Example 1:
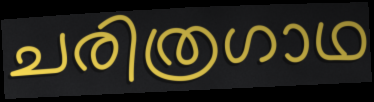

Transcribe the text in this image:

ചരിത്രഗാഥ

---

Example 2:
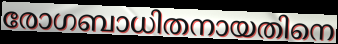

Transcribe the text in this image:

രോഗബാധിതനായതിനെ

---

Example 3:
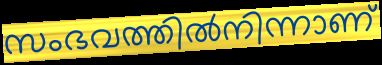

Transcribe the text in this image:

സംഭവത്തിൽനിന്നാണ്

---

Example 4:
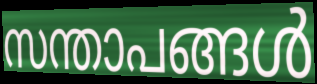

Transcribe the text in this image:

സന്താപങ്ങൾ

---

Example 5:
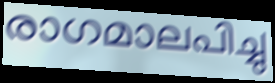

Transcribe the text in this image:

രാഗമാലപിച്ചു